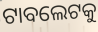
ଟାବଲେଟକୁ